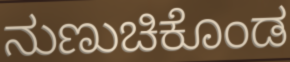
ನುಣುಚಿಕೊಂಡ